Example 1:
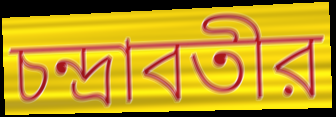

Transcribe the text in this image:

চন্দ্রাবতীর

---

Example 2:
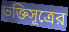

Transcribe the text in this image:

ভক্তিসূত্রের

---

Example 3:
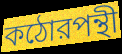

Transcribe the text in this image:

কঠোরপন্থী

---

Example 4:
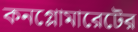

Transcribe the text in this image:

কনগ্লোমারেটের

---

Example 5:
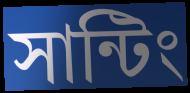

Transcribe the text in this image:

সান্টিং